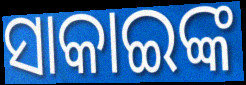
ସାକାଇଙ୍କ